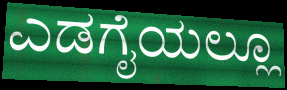
ಎಡಗೈಯಲ್ಲೂ